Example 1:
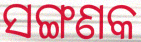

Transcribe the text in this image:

ସଙ୍ଗଣକ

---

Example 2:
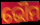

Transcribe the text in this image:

ଭୌମ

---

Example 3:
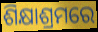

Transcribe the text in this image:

ଶିକ୍ଷାଶ୍ରମରେ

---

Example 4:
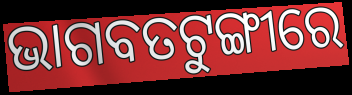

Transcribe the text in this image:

ଭାଗବତଟୁଙ୍ଗୀରେ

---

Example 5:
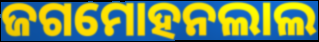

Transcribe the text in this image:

ଜଗମୋହନଲାଲ